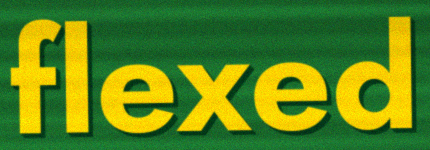
flexed